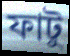
ফাটু